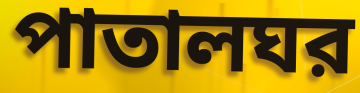
পাতালঘর